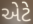
એટે